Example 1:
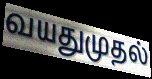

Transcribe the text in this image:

வயதுமுதல்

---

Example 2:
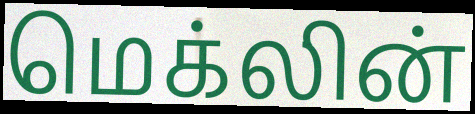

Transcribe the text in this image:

மெக்லின்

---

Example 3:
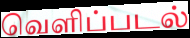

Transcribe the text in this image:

வெளிப்படல்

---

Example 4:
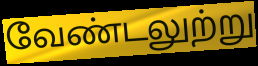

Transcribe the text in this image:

வேண்டலுற்று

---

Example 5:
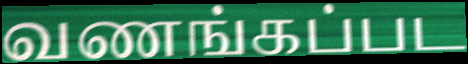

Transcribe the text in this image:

வணங்கப்பட